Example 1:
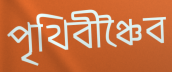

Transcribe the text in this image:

পৃথিবীঞ্চৈব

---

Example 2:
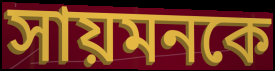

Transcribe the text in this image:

সায়মনকে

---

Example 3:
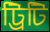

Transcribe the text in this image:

ট্রিটি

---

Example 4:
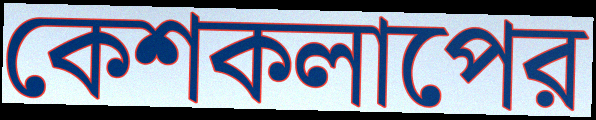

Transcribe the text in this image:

কেশকলাপের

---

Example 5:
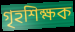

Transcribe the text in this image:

গৃহশিক্ষক